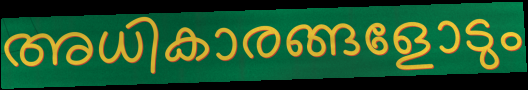
അധികാരങ്ങളോടും